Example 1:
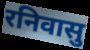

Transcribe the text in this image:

रनिवासु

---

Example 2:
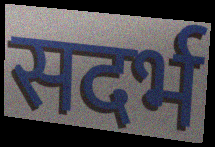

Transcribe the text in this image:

सदर्भ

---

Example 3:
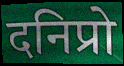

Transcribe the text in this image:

दनिप्रो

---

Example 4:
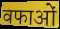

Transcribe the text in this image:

वफाओं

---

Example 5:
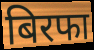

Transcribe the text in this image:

बिरफा